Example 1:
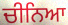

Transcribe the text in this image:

ਚੀਨਿਆ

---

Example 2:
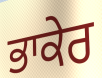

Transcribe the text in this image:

ਭਾਕੇਰ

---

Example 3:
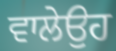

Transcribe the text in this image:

ਵਾਲੇਉਹ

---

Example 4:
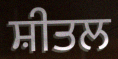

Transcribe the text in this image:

ਸ਼ੀਤਲ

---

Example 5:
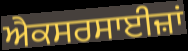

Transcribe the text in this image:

ਐਕਸਰਸਾਈਜ਼ਾਂ